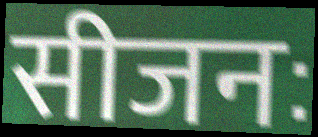
सीजनः